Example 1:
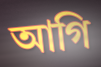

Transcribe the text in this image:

আগি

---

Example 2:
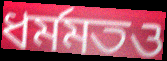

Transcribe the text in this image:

ধর্মমতও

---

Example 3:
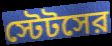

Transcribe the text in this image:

স্টেটসের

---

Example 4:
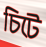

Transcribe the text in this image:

চিটে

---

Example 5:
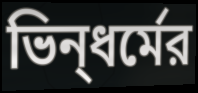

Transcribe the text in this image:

ভিন্‌ধর্মের